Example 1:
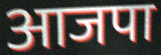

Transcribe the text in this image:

आजपा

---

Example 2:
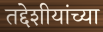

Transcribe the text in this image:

तद्देशीयांच्या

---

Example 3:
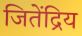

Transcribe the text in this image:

जितेंद्रिय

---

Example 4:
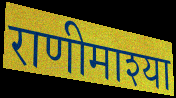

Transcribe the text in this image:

राणीमाश्या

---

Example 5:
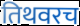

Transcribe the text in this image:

तिथवरच